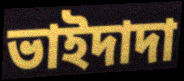
ভাইদাদা